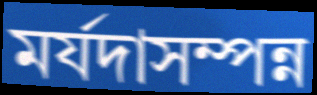
মৰ্যদাসম্পন্ন